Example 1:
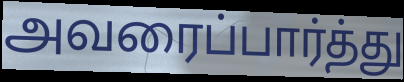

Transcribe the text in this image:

அவரைப்பார்த்து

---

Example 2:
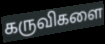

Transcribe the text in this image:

கருவிகளை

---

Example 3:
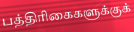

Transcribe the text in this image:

பத்திரிகைகளுக்குக்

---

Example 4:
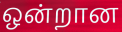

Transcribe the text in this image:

ஒன்றான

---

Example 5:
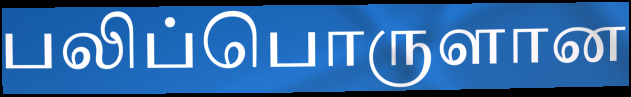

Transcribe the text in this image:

பலிப்பொருளான